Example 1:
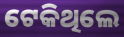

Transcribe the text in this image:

ଟେକିଥିଲେ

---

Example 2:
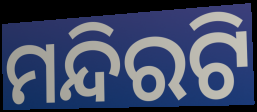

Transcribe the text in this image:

ମନ୍ଦିରଟି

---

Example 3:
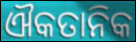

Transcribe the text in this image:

ଐକତାନିକ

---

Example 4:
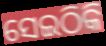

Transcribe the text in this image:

ସେଇଠିକି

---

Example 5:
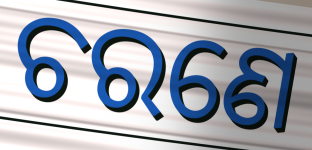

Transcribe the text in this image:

ଚରଣେ